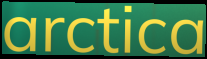
arctica